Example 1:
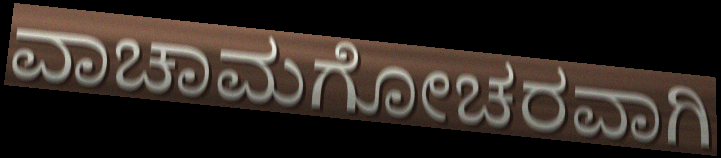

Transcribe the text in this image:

ವಾಚಾಮಗೋಚರವಾಗಿ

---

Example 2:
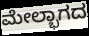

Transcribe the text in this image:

ಮೇಲ್ಭಾಗದ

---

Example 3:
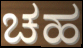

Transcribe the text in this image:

ಚಹ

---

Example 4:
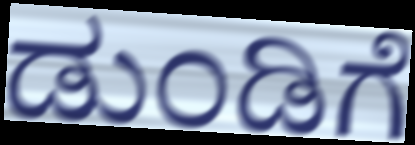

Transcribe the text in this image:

ಡುಂಡಿಗೆ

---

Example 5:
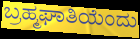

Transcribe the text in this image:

ಬ್ರಹ್ಮಘಾತಿಯೆಂದು